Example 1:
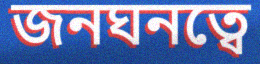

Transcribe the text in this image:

জনঘনত্বে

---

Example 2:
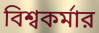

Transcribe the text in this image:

বিশ্বকর্মার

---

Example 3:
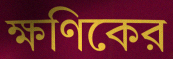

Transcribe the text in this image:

ক্ষণিকের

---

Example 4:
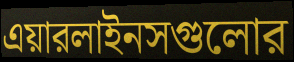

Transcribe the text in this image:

এয়ারলাইনসগুলোর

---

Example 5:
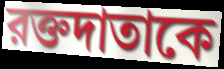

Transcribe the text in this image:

রক্তদাতাকে